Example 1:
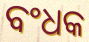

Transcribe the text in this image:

ବଂଧକ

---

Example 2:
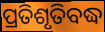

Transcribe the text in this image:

ପ୍ରତିଶୃତିବଦ୍ଧ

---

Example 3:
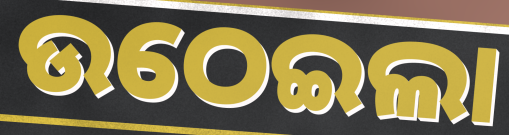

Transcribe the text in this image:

ଉଠେଇଲା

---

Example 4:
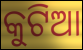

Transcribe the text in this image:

କୁଟିଆ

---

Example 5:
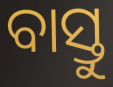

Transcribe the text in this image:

ବାସ୍ତୁ